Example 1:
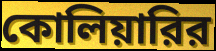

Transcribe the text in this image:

কোলিয়ারির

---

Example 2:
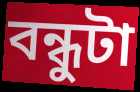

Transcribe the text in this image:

বন্ধুটা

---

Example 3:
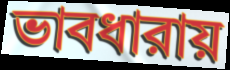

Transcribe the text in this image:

ভাবধারায়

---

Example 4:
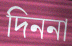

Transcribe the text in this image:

দিননা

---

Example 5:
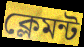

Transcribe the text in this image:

ক্লেমন্ট